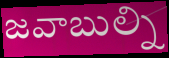
జవాబుల్ని